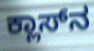
ಕ್ಲಾಸ್‌ನ